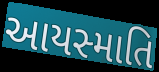
આયસ્માતિ